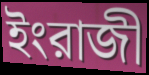
ইংরাজী